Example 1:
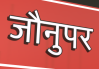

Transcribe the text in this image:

जौनुपर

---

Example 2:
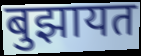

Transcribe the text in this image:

बुझायत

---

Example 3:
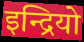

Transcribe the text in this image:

इन्द्रियो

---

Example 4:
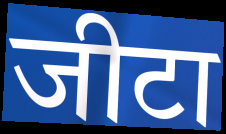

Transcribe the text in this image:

जीटा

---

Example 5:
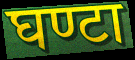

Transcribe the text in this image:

घण्टा